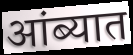
आंब्यात